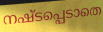
നഷ്ടപ്പെടാതെ